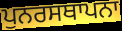
ਪੁਨਰਸਥਾਪਨਾ